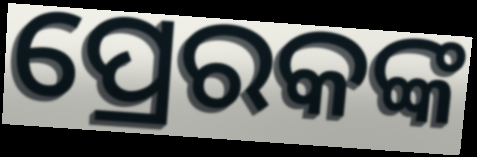
ପ୍ରେରକଙ୍କ